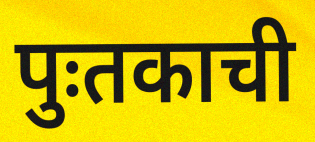
पुःतकाची